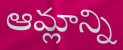
ఆమ్లాన్ని